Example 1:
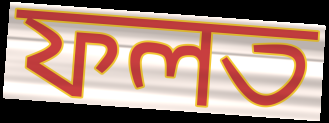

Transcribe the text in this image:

ফলত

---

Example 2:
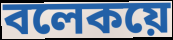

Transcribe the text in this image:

বলেকয়ে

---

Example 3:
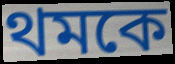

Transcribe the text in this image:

থমকে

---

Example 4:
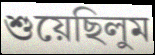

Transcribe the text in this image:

শুয়েছিলুম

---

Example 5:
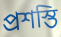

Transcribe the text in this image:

প্রশস্তি